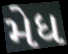
મેધ